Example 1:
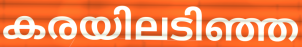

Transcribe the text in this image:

കരയിലടിഞ്ഞ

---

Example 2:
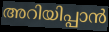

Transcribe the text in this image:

അറിയിപ്പാൻ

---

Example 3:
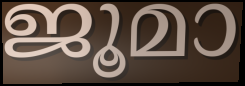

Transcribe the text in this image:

ജൂമാ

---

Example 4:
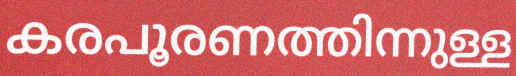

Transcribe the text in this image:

കരപൂരണത്തിന്നുള്ള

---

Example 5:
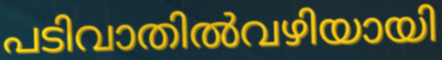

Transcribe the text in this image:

പടിവാതിൽവഴിയായി